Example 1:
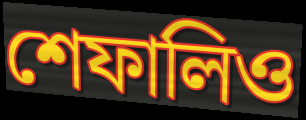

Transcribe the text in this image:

শেফালিও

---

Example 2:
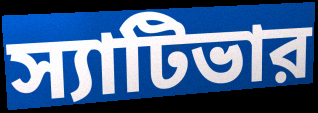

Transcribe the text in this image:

স্যাটিভার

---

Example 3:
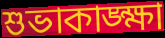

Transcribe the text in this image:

শুভাকাঙ্ক্ষা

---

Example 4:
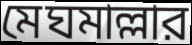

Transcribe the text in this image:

মেঘমাল্লার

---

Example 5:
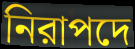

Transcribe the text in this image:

নিরাপদে